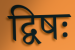
द्विषः